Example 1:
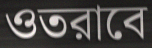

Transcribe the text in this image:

ওতরাবে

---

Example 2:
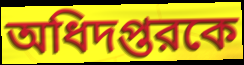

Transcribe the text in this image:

অধিদপ্তরকে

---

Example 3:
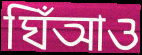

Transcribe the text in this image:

ঘিঁআও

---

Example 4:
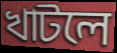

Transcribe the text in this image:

খাটলে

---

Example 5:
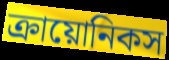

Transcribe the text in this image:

ক্রায়োনিকস